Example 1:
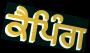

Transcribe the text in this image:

ਕੈਪਿੰਗ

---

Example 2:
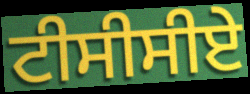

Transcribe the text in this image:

ਟੀਸੀਸੀਏ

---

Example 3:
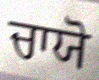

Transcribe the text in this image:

ਚਾਯੋ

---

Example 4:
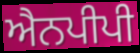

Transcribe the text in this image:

ਐਨਪੀਪੀ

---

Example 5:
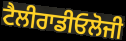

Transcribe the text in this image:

ਟੈਲੀਰਾਡੀਓਲੋਜੀ